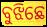
ବୁଝିଛେ